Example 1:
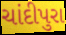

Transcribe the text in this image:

ચાંદીપુરા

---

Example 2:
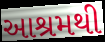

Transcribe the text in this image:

આશ્રમથી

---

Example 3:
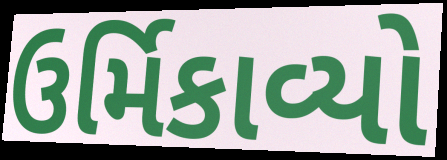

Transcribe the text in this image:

ઉર્મિકાવ્યો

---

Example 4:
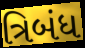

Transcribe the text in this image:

ત્રિબંધ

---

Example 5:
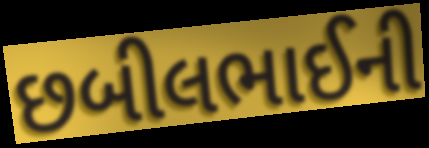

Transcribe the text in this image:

છબીલભાઈની